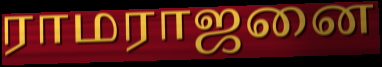
ராமராஜனை